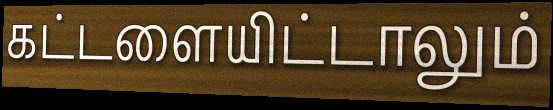
கட்டளையிட்டாலும்